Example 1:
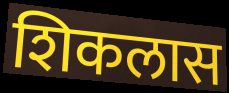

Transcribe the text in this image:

शिकलास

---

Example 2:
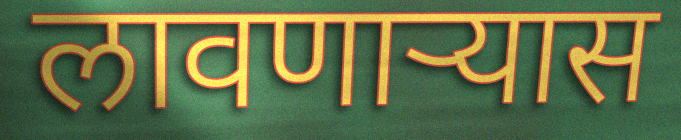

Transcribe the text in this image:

लावणाऱ्यास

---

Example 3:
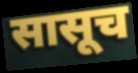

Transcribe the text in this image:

सासूच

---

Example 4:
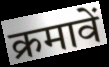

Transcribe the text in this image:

क्रमावें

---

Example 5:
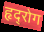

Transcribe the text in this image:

हृद्‍रोग